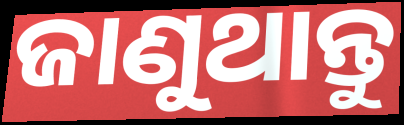
ଜାଣୁଥାନ୍ତୁ